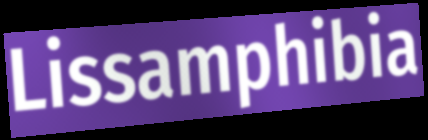
Lissamphibia